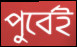
পুৰ্বেই